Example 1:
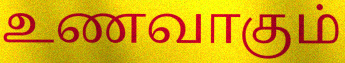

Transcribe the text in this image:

உணவாகும்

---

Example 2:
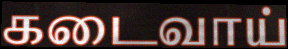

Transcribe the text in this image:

கடைவாய்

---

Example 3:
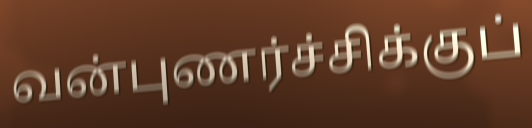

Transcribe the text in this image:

வன்புணர்ச்சிக்குப்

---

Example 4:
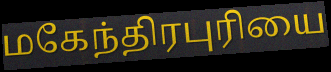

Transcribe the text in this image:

மகேந்திரபுரியை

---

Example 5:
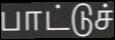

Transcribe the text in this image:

பாட்டுச்